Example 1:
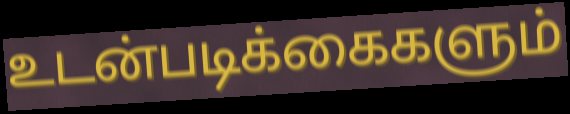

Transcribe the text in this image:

உடன்படிக்கைகளும்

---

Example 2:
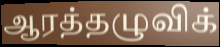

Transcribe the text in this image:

ஆரத்தழுவிக்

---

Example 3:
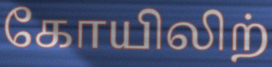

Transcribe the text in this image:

கோயிலிற்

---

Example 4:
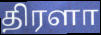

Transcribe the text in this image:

திரளா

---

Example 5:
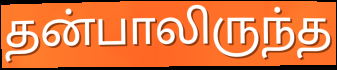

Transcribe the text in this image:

தன்பாலிருந்த